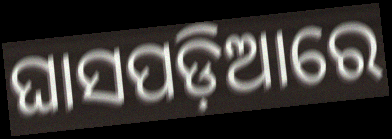
ଘାସପଡ଼ିଆରେ